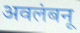
अवलंबनू